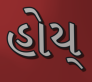
હોય્